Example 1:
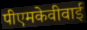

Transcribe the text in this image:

पीएमकेवीवाई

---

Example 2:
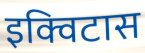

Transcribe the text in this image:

इक्विटास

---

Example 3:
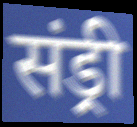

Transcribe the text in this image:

संड्री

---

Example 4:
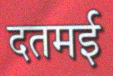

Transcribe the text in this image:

दतमई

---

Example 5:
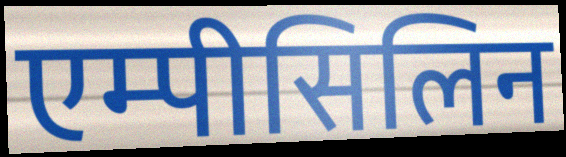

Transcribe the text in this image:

एम्पीसिलिन